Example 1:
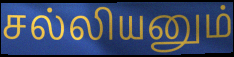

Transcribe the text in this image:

சல்லியனும்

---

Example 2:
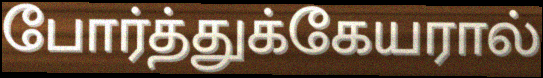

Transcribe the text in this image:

போர்த்துக்கேயரால்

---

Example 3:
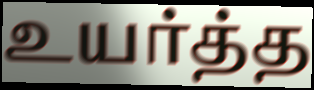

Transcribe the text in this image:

உயர்த்த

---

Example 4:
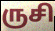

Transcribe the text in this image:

ருசி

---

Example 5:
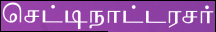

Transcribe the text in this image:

செட்டிநாட்டரசர்